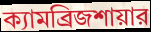
ক্যামব্রিজশায়ার